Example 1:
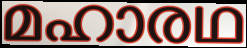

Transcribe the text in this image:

മഹാരഥ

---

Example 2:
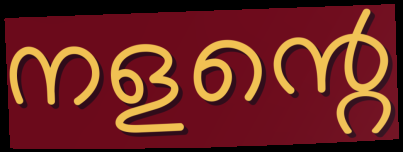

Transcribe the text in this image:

നളന്റെ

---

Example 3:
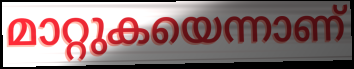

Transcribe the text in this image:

മാറ്റുകയെന്നാണ്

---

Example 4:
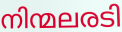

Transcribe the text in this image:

നിന്മലരടി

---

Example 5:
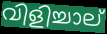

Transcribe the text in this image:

വിളിച്ചാല്